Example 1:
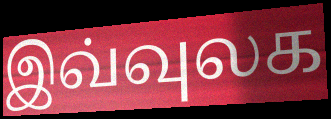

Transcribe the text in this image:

இவ்வுலக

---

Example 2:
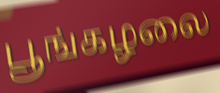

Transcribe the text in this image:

பூங்கழலை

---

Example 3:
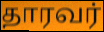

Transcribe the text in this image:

தாரவர்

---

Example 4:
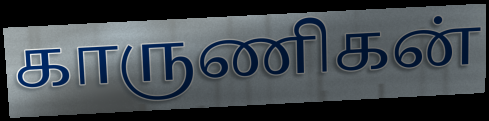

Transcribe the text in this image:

காருணிகன்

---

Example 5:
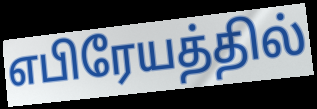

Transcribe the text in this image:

எபிரேயத்தில்